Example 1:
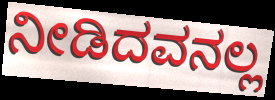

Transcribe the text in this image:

ನೀಡಿದವನಲ್ಲ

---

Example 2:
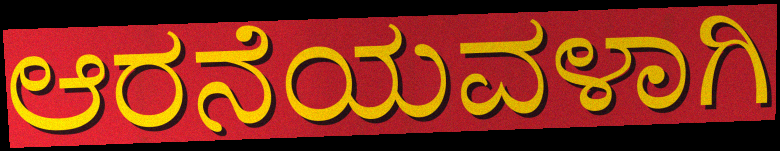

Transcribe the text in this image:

ಆರನೆಯವಳಾಗಿ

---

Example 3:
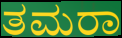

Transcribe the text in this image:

ತಮರಾ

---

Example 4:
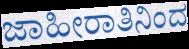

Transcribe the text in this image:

ಜಾಹೀರಾತಿನಿಂದ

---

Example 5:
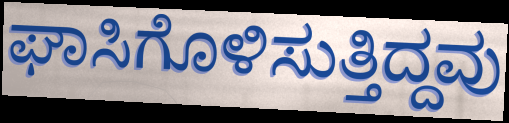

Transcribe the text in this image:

ಘಾಸಿಗೊಳಿಸುತ್ತಿದ್ದವು